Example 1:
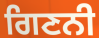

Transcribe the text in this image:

ਗਿਣਨੀ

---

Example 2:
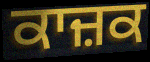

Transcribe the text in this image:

ਕਾਜ਼ਕ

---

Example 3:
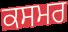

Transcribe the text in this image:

ਕਸਮਰ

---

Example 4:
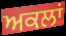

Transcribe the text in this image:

ਅਕਲਾਂ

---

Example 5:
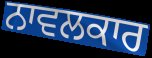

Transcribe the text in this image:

ਨਾਵਲਕਾਰ